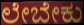
ಲೇಬೇಕು